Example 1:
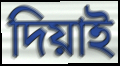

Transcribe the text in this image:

দিয়াই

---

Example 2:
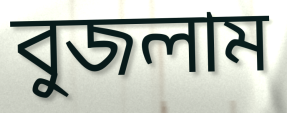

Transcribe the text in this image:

বুজলাম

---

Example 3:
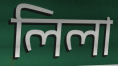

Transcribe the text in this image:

লিলা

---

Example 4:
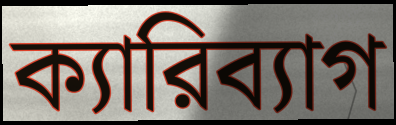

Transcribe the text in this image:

ক্যারিব্যাগ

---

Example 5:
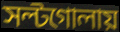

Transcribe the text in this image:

সল্টগোলায়